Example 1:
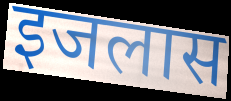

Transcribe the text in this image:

इजलास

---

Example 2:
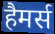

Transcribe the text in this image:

हैमर्स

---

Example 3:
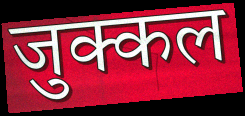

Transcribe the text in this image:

जुक्कल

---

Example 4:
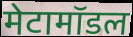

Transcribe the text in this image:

मेटामॉडल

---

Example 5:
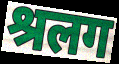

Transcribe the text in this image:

श्रलग